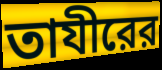
তাযীরের